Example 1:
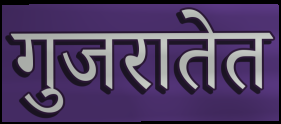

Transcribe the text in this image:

गुजरातेत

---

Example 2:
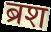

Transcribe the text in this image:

ब्रश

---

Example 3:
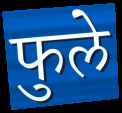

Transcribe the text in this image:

फुले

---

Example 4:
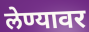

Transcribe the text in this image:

लेण्यावर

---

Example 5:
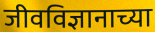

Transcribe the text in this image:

जीवविज्ञानाच्या